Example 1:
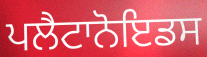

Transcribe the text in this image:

ਪਲੈਟਾਨੋਇਡਸ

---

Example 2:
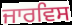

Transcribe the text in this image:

ਜਾਰਵਿਸ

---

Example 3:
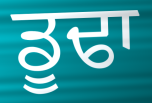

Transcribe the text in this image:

ਡੂਢਾ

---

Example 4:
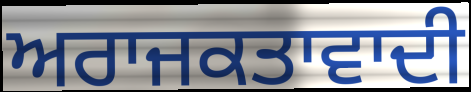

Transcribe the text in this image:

ਅਰਾਜਕਤਾਵਾਦੀ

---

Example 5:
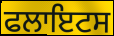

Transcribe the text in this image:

ਫਲਾਇਟਸ